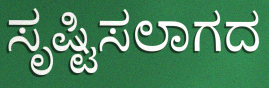
ಸೃಷ್ಟಿಸಲಾಗದ